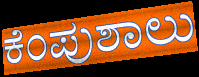
ಕೆಂಪುಶಾಲು